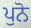
ਪੁਨੋ